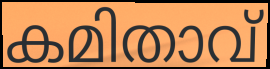
കമിതാവ്